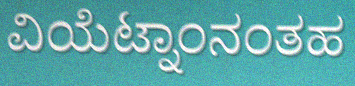
ವಿಯೆಟ್ನಾಂನಂತಹ